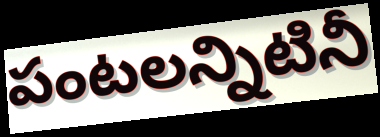
పంటలన్నిటినీ